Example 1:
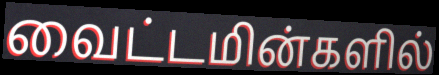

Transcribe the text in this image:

வைட்டமின்களில்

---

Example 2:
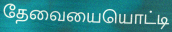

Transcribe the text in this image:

தேவையையொட்டி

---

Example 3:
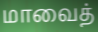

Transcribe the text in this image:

மாவைத்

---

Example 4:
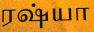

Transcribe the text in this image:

ரஷ்யா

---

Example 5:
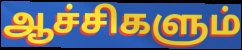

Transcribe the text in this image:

ஆச்சிகளும்